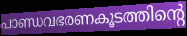
പാണ്ഡവഭരണകൂടത്തിന്റെ